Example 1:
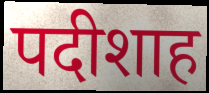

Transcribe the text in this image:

पदीशाह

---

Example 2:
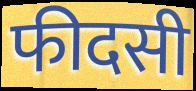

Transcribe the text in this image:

फीदसी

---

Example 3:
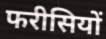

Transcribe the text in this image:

फरीसियों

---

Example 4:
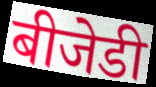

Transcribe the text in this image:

बीजेडी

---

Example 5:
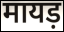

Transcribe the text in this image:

मायड़